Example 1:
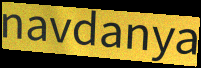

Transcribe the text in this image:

navdanya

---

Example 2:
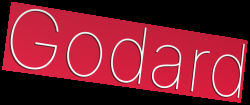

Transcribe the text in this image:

Godard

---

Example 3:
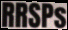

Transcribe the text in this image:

RRSPs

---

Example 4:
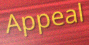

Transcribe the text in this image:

Appeal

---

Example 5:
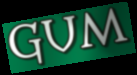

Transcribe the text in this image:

GUM